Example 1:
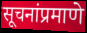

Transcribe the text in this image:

सूचनांप्रमाणे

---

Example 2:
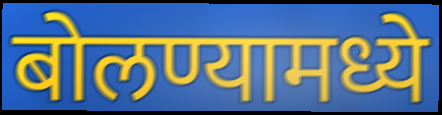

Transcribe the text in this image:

बोलण्यामध्ये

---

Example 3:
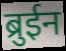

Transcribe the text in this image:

ब्रुईन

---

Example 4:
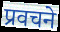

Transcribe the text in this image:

प्रवचने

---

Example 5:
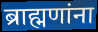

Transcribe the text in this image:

ब्राह्मणांना